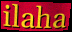
ilaha